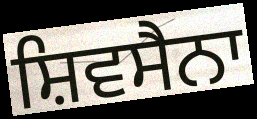
ਸ਼ਿਵਸੈਨਾ